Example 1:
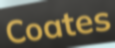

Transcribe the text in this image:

Coates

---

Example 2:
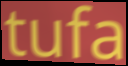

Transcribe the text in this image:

tufa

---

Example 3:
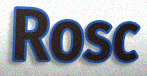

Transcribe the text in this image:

Rosc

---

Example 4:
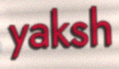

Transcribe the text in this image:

yaksh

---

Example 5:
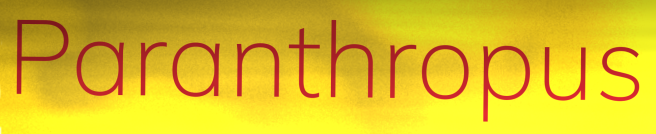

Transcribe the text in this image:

Paranthropus